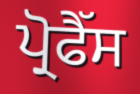
ਪ੍ਰੋਫੈੱਸ